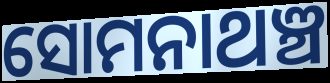
ସୋମନାଥଞ୍ଚ